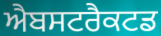
ਐਬਸਟਰੈਕਟਡ